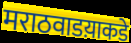
मराठवाडय़ाकडे